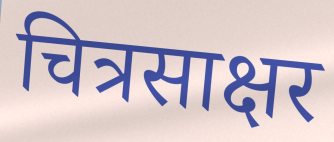
चित्रसाक्षर